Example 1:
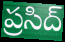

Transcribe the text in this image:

ప్రసిద్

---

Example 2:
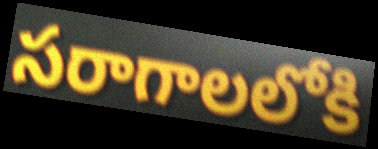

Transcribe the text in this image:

సరాగాలలోకి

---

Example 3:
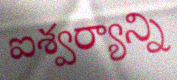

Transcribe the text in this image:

ఐశ్వర్యాన్ని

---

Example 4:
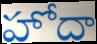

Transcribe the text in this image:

హోదా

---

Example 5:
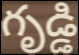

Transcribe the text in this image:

గృడ్డి